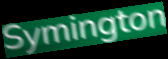
Symington